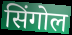
सिंगोल